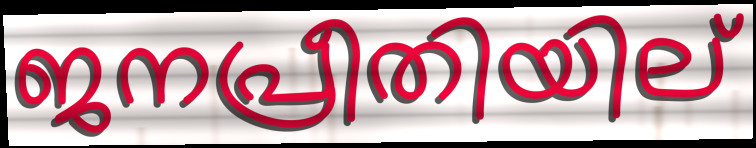
ജനപ്രീതിയില്